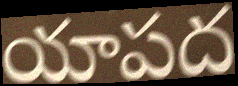
యాపద